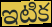
ఇటిక